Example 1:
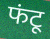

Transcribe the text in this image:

फंटू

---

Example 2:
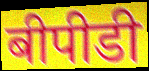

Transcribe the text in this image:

बीपीडी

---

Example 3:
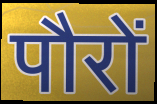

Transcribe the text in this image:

पौरों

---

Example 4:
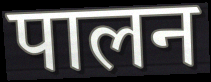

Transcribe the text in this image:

पालन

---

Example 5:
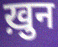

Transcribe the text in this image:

ख़ुन